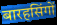
बारहसिंगों